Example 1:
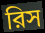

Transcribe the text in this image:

রিস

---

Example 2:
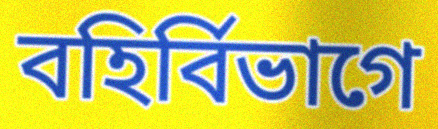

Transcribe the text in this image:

বহির্বিভাগে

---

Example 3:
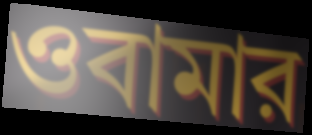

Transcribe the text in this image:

ওবামার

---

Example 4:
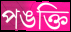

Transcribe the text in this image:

পঙক্তি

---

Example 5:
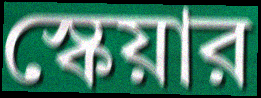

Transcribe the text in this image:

স্কেয়ার